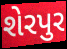
શેરપુર